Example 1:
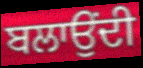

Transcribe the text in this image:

ਬਲਾਉਂਦੀ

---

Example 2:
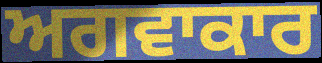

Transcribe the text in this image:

ਅਗਵਾਕਾਰ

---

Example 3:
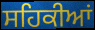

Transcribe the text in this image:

ਸਹਿਕੀਆਂ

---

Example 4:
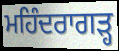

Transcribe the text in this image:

ਮਹਿੰਦਰਾਗੜ੍ਹ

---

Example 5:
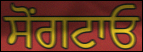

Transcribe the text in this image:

ਸੋਂਗਟਾਓ